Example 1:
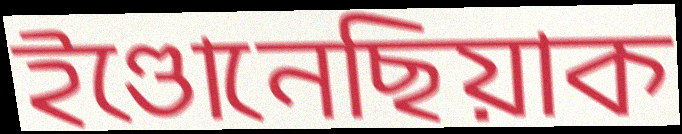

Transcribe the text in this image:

ইণ্ডোনেছিয়াক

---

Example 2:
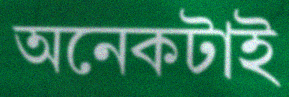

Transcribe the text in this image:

অনেকটাই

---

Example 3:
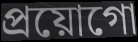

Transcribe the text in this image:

প্ৰয়োগো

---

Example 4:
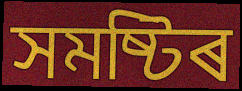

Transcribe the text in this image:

সমষ্টিৰ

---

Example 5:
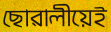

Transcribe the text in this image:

ছোৱালীয়েই